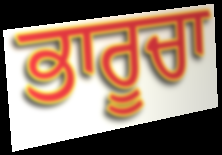
ਭਾਰੂਚਾ